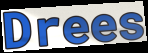
Drees